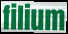
filium